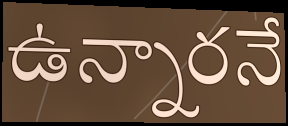
ఉన్నారనే